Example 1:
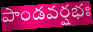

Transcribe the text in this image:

పాండవర్షభః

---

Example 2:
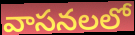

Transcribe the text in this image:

వాసనలలో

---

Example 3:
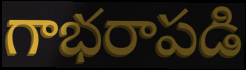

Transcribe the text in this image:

గాభరాపడి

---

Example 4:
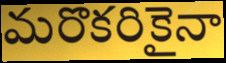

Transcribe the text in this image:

మరొకరికైనా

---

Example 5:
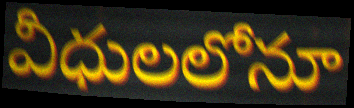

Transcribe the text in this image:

వీధులలోనూ